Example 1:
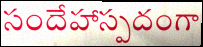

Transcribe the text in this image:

సందేహాస్పదంగా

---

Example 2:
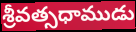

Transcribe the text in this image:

శ్రీవత్సధాముడు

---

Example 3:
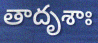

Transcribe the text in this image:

తాదృశాః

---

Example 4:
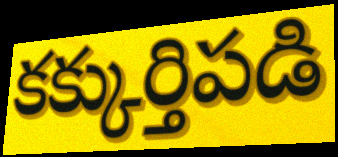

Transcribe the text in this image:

కక్కుర్తిపడి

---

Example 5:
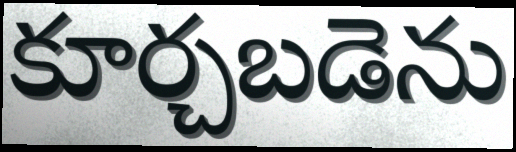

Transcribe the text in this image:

కూర్చబడెను